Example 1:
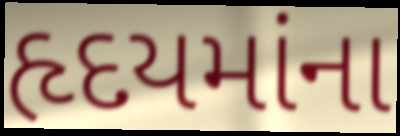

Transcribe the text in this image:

હૃદયમાંના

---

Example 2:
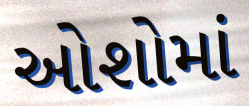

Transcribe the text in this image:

ઓશોમાં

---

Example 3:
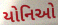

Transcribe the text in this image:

યોનિઓ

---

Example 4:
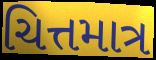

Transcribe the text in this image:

ચિત્તમાત્ર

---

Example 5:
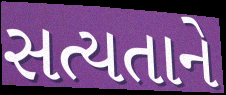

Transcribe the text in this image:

સત્યતાને